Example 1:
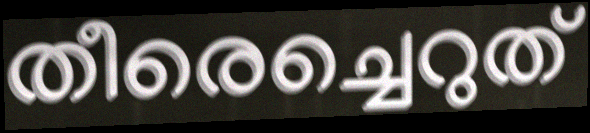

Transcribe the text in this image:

തീരെച്ചെറുത്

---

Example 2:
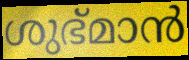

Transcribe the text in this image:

ശുഭ്മാൻ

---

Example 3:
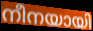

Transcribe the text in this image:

നീനയായി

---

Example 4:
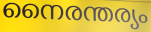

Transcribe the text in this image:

നൈരന്തര്യം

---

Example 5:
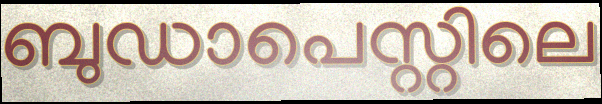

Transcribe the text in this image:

ബുഡാപെസ്റ്റിലെ